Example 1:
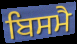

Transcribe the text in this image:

ਬਿਸਮੈ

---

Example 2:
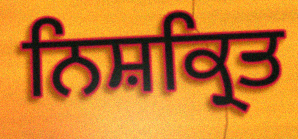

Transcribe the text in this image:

ਨਿਸ਼ਕ੍ਰਿਤ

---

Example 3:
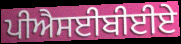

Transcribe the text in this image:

ਪੀਐਸਈਬੀਈਏ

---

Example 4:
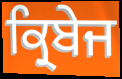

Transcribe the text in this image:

ਕ੍ਰਿਬੇਜ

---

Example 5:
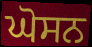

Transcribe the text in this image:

ਘੋਸਨ